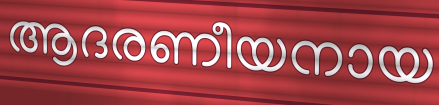
ആദരണീയനായ